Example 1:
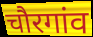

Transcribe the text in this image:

चौरगांव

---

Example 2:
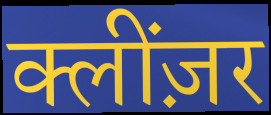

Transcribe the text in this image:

क्लींज़र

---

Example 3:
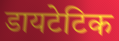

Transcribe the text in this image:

डायटेटिक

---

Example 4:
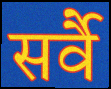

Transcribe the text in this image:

सर्वै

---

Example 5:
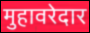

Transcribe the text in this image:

मुहावरेदार